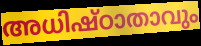
അധിഷ്ഠാതാവും